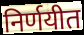
निर्णयीत